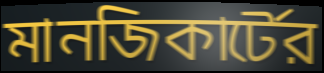
মানজিকার্টের